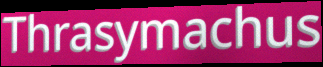
Thrasymachus